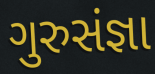
ગુરુસંજ્ઞા